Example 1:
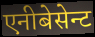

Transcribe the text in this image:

एनीबेसेन्ट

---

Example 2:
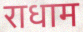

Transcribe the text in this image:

राधाम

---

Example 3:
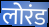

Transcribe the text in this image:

लोरंड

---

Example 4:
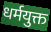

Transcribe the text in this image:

धर्मयुक्त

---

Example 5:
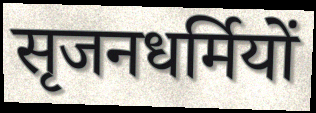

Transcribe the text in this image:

सृजनधर्मियों